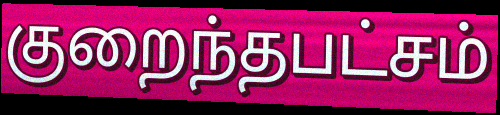
குறைந்தபட்சம்